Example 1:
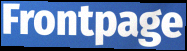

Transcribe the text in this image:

Frontpage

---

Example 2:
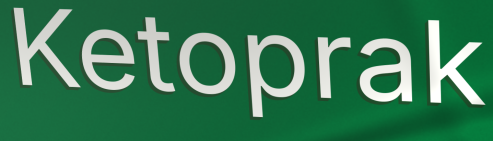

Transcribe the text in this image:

Ketoprak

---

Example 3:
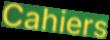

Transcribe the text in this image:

Cahiers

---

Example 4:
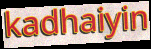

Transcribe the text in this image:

kadhaiyin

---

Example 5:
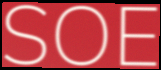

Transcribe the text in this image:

SOE